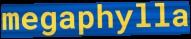
megaphylla